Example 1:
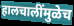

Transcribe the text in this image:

हालचालींमुळेच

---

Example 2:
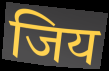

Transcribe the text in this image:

जिय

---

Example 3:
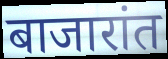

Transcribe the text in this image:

बाजारांत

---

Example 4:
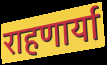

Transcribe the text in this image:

राहणार्या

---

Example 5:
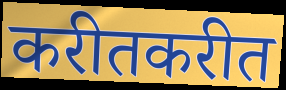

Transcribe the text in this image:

करीतकरीत